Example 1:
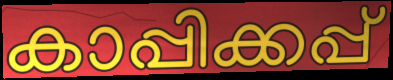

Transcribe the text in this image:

കാപ്പിക്കപ്പ്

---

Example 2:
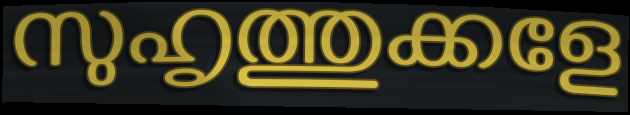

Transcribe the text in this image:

സുഹൃത്തുക്കളേ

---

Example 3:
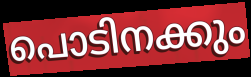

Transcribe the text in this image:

പൊടിനക്കും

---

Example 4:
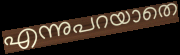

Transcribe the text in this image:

എന്നുപറയാതെ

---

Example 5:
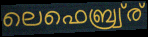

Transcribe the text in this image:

ലെഫെബ്ര്വ്ര്